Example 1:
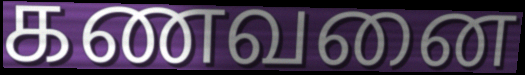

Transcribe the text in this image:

கணவனை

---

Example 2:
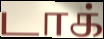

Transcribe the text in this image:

டாக்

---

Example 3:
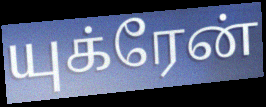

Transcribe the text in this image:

யுக்ரேன்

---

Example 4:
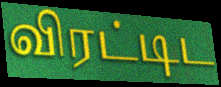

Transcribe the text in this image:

விரட்டிட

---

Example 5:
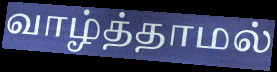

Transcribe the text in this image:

வாழ்த்தாமல்